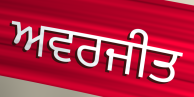
ਅਵਰਜੀਤ